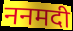
ननमदी